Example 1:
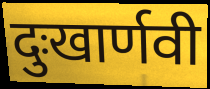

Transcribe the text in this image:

दुःखार्णवी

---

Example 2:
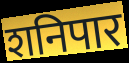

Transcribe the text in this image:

शनिपार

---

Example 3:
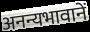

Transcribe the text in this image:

अनन्यभावानें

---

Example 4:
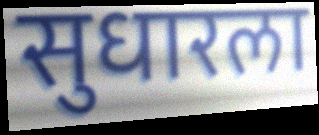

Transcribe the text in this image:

सुधारला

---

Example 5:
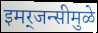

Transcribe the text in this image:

इमर्जन्सीमुळे